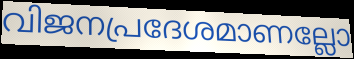
വിജനപ്രദേശമാണല്ലോ